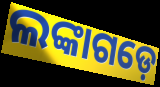
ଲଙ୍କାଗଡ଼େ